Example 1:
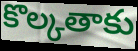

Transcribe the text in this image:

కొల్కతాకు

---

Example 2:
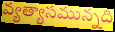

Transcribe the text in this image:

వ్యత్యాసమున్నది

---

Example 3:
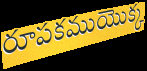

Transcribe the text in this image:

రూపకముయొక్క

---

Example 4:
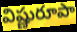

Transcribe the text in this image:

విష్ణురూపా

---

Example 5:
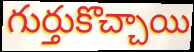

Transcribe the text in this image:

గుర్తుకొచ్చాయి